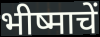
भीष्माचें